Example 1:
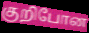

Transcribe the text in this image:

குறிபோன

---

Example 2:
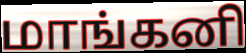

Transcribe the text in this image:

மாங்கனி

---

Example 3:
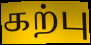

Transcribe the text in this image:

கற்பு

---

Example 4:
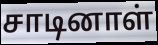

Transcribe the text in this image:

சாடினாள்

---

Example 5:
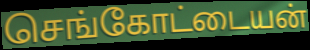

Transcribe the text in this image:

செங்கோட்டையன்